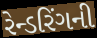
રેન્ડરિંગની